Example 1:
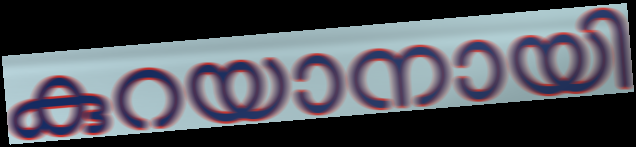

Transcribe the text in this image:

കുറയാനായി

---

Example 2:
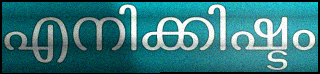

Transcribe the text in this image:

എനിക്കിഷ്ടം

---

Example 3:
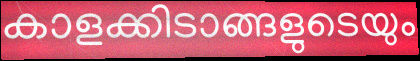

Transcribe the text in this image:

കാളക്കിടാങ്ങളുടെയും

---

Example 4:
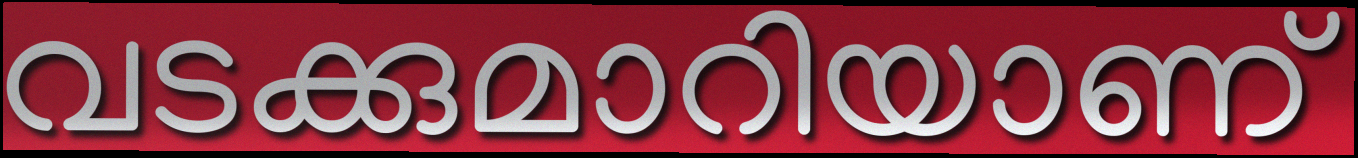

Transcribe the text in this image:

വടക്കുമാറിയാണ്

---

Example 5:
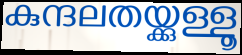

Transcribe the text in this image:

കുന്ദലതയ്ക്കുള്ളൂ